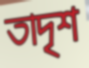
তাদৃশ